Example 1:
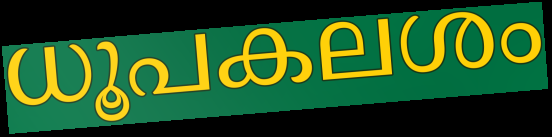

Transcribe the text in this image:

ധൂപകലശം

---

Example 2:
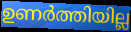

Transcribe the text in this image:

ഉണർത്തിയില്ല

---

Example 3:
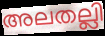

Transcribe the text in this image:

അലതല്ലി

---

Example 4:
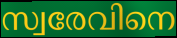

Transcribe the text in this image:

സ്വരേവിനെ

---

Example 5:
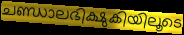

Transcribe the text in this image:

ചണ്ഡാലഭിക്ഷുകിയിലൂടെ